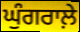
ਘੁੰਗਰਾਲ਼ੇ